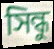
সিন্ধু